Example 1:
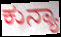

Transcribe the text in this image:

ಕುನ್ಯಾ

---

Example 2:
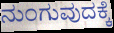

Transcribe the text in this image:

ನುಂಗುವುದಕ್ಕೆ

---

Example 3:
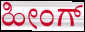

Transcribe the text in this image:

ಹೀಂಗ್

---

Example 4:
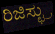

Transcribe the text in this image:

ರಿಜಿಸ್ಟ್ರು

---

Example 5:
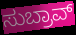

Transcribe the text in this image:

ಸುಬ್ರಾವ್